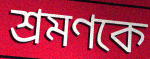
শ্রমণকে